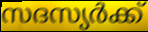
സദസ്യർക്ക്